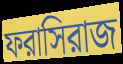
ফরাসিরাজ